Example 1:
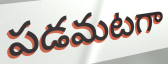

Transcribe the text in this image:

పడమటగా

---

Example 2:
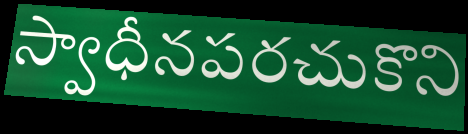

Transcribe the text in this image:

స్వాధీనపరచుకొని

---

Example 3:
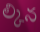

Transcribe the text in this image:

ల్కిన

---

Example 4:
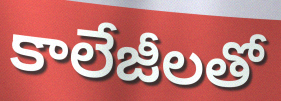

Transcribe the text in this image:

కాలేజీలతో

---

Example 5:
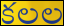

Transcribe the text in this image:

కలల